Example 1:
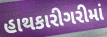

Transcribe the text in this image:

હાથકારીગરીમાં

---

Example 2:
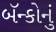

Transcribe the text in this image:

બૅન્કોનું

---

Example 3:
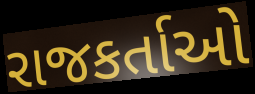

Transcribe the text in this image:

રાજકર્તાઓ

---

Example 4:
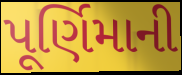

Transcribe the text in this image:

પૂર્ણિમાની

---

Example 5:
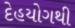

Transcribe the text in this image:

દેહયોગથી